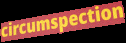
circumspection